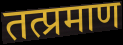
तत्प्रमाण